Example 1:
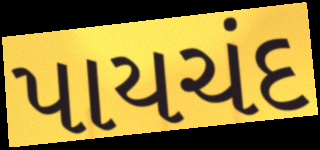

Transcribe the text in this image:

પાયચંદ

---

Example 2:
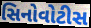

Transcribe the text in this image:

સિનોવોટીસ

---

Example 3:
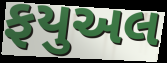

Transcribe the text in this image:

ફયુઅલ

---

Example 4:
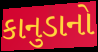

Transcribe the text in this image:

કાનુડાનો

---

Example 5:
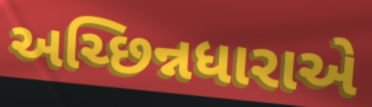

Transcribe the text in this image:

અચ્છિન્નધારાએ